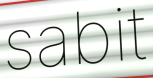
sabit